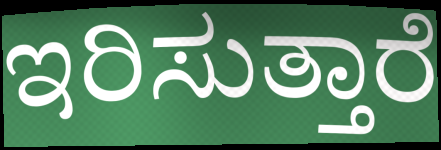
ಇರಿಸುತ್ತಾರೆ